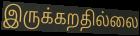
இருக்கறதில்லை